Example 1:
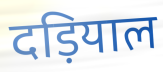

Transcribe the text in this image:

दड़ियाल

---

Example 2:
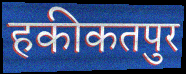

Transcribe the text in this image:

हकीकतपुर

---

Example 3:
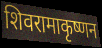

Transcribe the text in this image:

शिवरामाकृष्णन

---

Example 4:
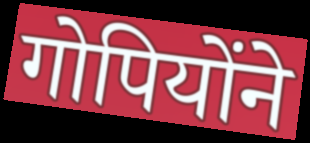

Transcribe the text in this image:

गोपियोंने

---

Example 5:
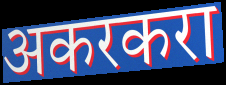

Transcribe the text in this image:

अकरकरा